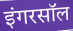
इंगरसॉल